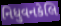
નિધુવનકેલિ